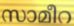
സാമീറ